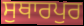
ਸੁਥਾਰਪੁਰ